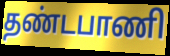
தண்டபாணி